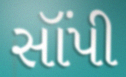
સૉંપી